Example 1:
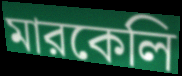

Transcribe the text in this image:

মারকেলি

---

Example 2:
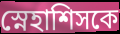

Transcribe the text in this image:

স্নেহাশিসকে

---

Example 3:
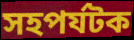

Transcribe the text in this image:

সহপর্যটক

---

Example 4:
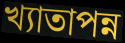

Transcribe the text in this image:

খ্যাতাপন্ন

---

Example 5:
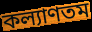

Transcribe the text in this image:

কল্যাণতম